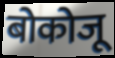
बोकोजू